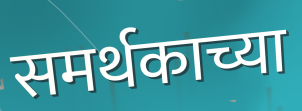
समर्थकाच्या